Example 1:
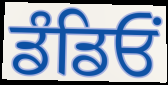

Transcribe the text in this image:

ਡੰਡਿਓਂ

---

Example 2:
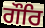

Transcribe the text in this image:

ਗੌਰਿ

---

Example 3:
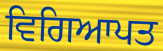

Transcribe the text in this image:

ਵਿਗਿਆਪਤ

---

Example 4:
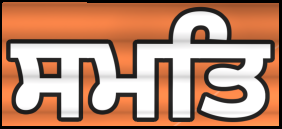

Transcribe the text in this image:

ਸਮਤਿ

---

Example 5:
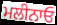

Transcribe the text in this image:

ਮਲੀਨਾਓ